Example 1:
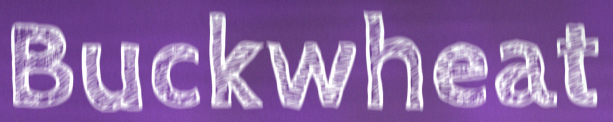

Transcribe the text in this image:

Buckwheat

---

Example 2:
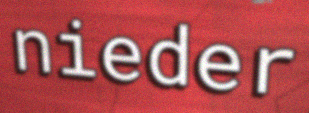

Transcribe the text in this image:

nieder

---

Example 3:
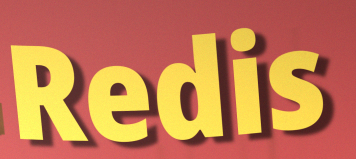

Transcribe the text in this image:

Redis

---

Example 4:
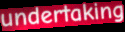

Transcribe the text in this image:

undertaking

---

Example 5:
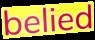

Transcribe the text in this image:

belied